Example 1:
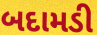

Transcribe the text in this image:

બદામડી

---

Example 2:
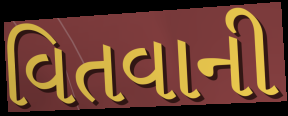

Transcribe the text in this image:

વિતવાની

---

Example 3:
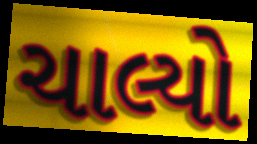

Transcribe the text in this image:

ચાલ્યો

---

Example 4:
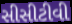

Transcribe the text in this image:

સીસીટીવી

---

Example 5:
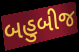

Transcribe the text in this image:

બહુબીજ